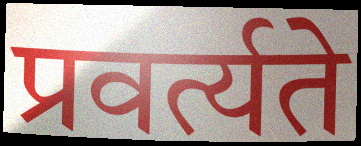
प्रवर्त्यते